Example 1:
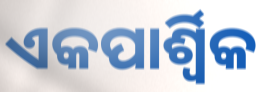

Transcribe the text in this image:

ଏକପାର୍ଶ୍ୱିକ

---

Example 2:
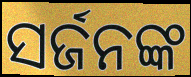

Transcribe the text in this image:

ସର୍ଜନଙ୍କ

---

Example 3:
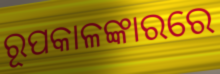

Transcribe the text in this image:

ରୂପକାଳଙ୍କାରରେ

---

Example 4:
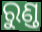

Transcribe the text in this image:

ରୁଣ୍ଡ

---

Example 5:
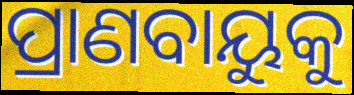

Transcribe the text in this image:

ପ୍ରାଣବାୟୁକୁ